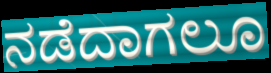
ನಡೆದಾಗಲೂ